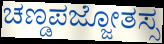
ಚಣ್ಡಪಜ್ಜೋತಸ್ಸ